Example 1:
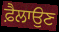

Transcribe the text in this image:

ਫ਼ੈਲਾਉਣ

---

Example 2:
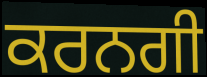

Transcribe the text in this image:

ਕਰਨਗੀ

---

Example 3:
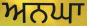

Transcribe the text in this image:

ਅਨਘਾ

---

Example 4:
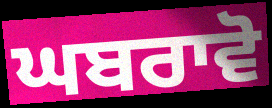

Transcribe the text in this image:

ਘਬਰਾਵੋ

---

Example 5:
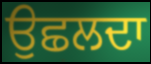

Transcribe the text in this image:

ਉਛਲਦਾ